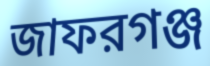
জাফরগঞ্জ